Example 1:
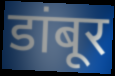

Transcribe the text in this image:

डांबूर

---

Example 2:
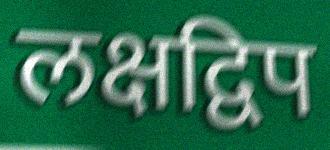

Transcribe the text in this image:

लक्षद्विप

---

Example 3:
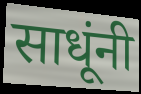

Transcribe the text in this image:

साधूंनी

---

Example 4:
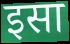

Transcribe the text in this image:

इसा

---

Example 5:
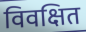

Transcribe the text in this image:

विवक्षित